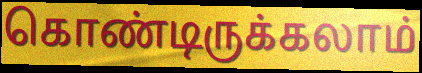
கொண்டிருக்கலாம்